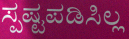
ಸ್ಪಷ್ಟಪಡಿಸಿಲ್ಲ